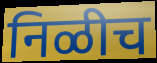
निळीच